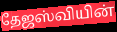
தேஜஸ்வியின்